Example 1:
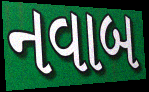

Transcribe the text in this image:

નવાબ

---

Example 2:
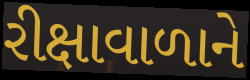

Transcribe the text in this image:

રીક્ષાવાળાને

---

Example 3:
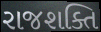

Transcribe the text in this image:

રાજશક્તિ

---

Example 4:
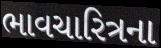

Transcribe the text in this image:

ભાવચારિત્રના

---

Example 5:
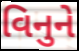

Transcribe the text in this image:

વિનુને